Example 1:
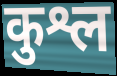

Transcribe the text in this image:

कुश्ल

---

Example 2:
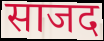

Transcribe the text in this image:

साजद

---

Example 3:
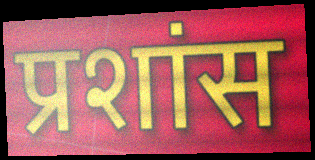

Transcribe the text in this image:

प्रशांस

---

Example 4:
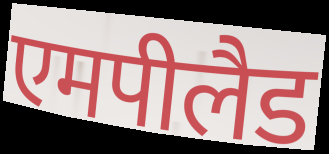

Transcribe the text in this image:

एमपीलैड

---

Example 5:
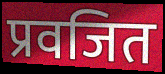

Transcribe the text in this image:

प्रवजित